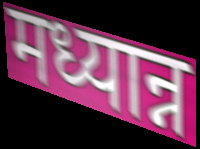
मध्यान्न